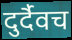
दुर्दैवच